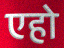
एहो